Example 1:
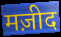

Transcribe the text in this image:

मज़ीद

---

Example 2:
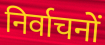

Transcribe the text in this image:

निर्वाचनों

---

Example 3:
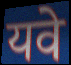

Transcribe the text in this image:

यवे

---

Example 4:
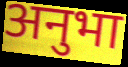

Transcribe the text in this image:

अनुभा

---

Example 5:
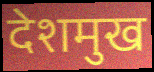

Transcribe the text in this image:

देशमुख